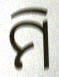
ମି